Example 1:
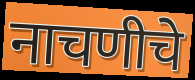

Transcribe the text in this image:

नाचणीचे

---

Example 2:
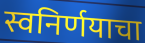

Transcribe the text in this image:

स्वनिर्णयाचा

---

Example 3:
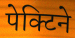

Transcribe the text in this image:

पेक्टिने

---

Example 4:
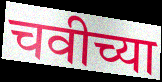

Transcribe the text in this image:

चवीच्या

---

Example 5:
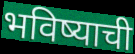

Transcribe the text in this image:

भविष्याची